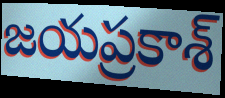
జయప్రకాశ్